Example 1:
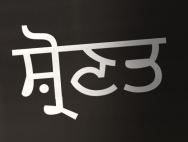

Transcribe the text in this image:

ਸ਼੍ਰੋਣਤ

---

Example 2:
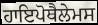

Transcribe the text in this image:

ਹਾਇਪੋਥੈਲੇਮਸ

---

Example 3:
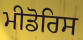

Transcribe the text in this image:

ਮੀਡੋਰਿਸ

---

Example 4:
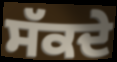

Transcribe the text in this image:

ਸੱਕਦੇ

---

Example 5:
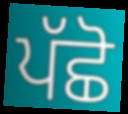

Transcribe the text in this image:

ਪੱਛੋ